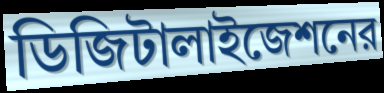
ডিজিটালাইজেশনের